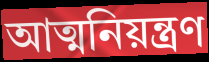
আত্মনিয়ন্ত্ৰণ